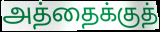
அத்தைக்குத்